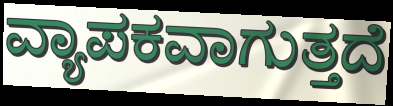
ವ್ಯಾಪಕವಾಗುತ್ತದೆ